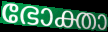
ഭോക്താ